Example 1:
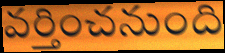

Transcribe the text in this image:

వర్తించనుంది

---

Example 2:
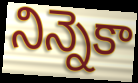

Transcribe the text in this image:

నిన్నెకా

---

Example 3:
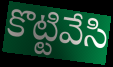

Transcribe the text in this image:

కొట్టివేసి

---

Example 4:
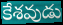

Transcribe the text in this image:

కేశవుడు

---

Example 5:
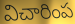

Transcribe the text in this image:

విచారింప